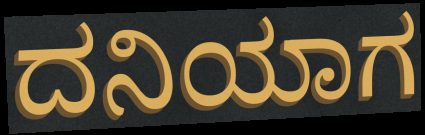
ದನಿಯಾಗ